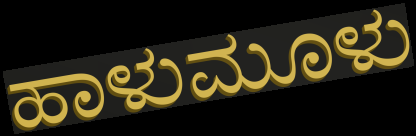
ಹಾಳುಮೂಳು